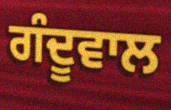
ਗੰਦੂਵਾਲ